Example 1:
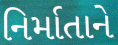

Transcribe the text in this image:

નિર્માતાને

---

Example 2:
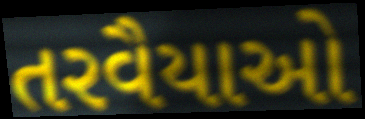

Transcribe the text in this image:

તરવૈયાઓ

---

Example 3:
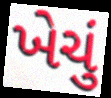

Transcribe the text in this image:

ખેચું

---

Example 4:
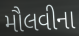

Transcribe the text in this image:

મૌલવીના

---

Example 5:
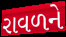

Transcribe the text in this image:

રાવળને